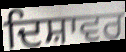
ਦਿਸ਼ਾਵਰ